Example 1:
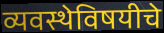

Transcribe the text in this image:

व्यवस्थेविषयीचे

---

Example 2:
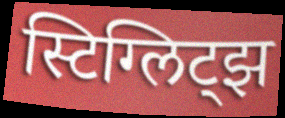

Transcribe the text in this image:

स्टिग्लिट्झ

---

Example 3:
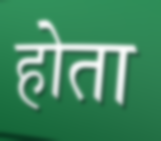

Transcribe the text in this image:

होता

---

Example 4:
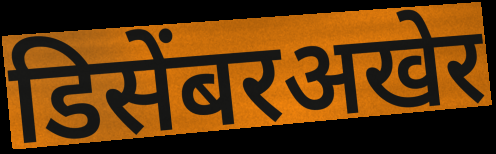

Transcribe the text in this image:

डिसेंबरअखेर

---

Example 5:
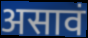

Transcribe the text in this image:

असावं